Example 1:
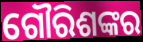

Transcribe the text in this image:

ଗୌରିଶଙ୍କର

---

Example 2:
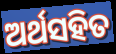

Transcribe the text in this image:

ଅର୍ଥସହିତ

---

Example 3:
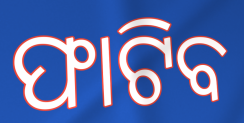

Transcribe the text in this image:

ଫାଟିବ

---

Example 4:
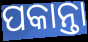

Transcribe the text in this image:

ପକାନ୍ତା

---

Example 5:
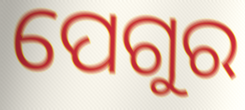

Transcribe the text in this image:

ପେଗୁର